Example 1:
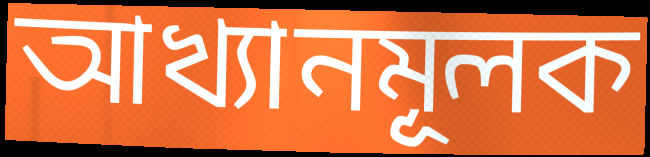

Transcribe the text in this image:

আখ্যানমূলক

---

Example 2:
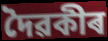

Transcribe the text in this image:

দৈৱকীৰ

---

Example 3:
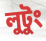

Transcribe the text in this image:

লুটুং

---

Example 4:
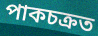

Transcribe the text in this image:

পাকচক্ৰত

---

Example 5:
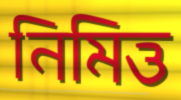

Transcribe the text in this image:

নিমিত্ত